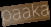
paaka